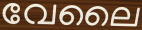
വേലൈ